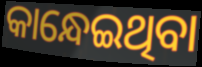
କାନ୍ଧେଇଥିବା